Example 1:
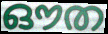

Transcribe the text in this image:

ഔത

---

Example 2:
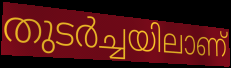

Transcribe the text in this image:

തുടർച്ചയിലാണ്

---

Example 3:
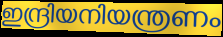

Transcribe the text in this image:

ഇന്ദ്രിയനിയന്ത്രണം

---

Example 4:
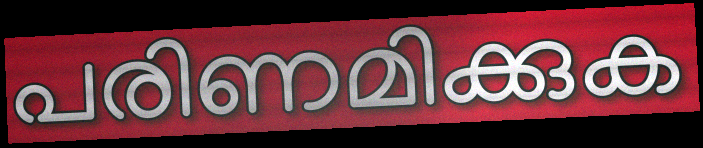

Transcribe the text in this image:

പരിണമിക്കുക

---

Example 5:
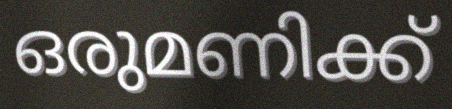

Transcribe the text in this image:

ഒരുമണിക്ക്